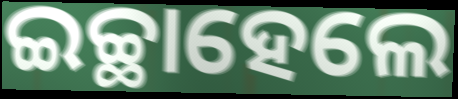
ଇଚ୍ଛାହେଲେ